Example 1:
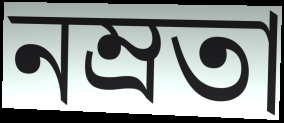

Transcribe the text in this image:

নম্রতা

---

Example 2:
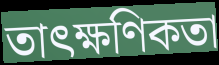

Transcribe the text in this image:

তাৎক্ষণিকতা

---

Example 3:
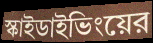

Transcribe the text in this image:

স্কাইডাইভিংয়ের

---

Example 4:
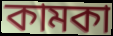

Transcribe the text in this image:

কামকা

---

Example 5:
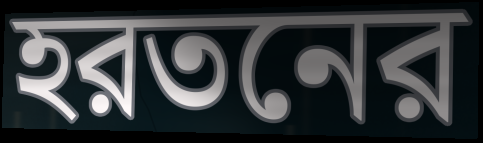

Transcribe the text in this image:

হরতনের